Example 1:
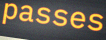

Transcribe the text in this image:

passes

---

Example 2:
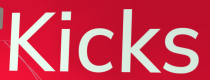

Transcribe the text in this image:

Kicks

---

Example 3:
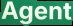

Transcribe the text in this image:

Agent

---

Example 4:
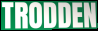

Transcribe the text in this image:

TRODDEN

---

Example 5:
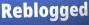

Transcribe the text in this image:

Reblogged